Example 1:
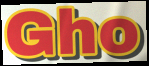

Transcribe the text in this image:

Gho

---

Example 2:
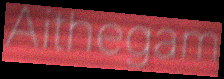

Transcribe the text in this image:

Aithegam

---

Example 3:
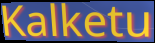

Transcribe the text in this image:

Kalketu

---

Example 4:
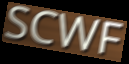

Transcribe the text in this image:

SCWF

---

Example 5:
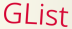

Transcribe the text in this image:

GList